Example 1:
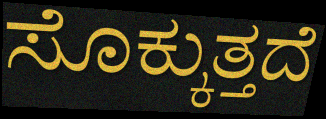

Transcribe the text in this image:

ಸೊಕ್ಕುತ್ತದೆ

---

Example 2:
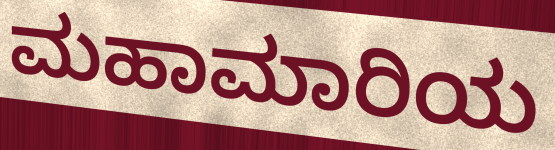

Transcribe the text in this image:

ಮಹಾಮಾರಿಯ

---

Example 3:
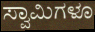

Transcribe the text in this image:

ಸ್ವಾಮಿಗಳೂ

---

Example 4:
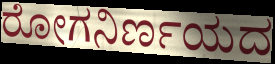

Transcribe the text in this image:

ರೋಗನಿರ್ಣಯದ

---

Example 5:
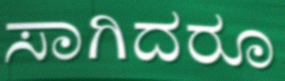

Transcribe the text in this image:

ಸಾಗಿದರೂ